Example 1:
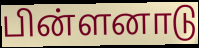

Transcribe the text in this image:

பின்ளனாடு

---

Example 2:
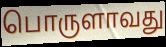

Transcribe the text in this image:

பொருளாவது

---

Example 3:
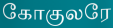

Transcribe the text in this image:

கோகுலரே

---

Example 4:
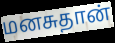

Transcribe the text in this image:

மனசுதான்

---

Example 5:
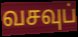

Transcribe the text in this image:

வசவுப்